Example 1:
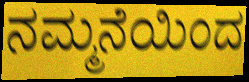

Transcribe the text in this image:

ನಮ್ಮನೆಯಿಂದ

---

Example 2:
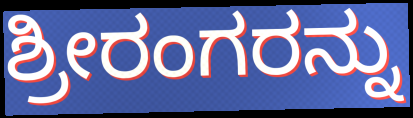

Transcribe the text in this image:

ಶ್ರೀರಂಗರನ್ನು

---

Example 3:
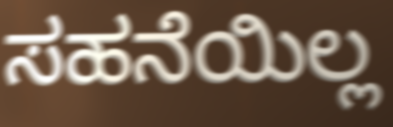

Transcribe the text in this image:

ಸಹನೆಯಿಲ್ಲ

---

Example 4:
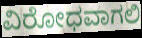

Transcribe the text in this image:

ವಿರೋಧವಾಗಲಿ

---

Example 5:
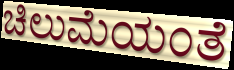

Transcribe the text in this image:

ಚಿಲುಮೆಯಂತೆ